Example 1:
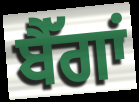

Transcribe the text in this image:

ਬੈੱਗਾਂ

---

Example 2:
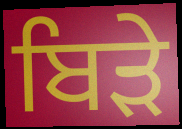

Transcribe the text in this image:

ਬਿੜੇ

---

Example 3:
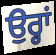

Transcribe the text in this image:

ਉਰ੍ਹਾਂ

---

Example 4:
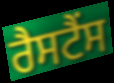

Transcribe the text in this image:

ਰੈਸਟੈਂਸ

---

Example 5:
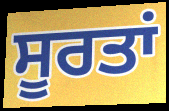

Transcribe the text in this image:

ਸੂਰਤਾਂ